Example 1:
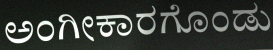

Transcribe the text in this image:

ಅಂಗೀಕಾರಗೊಂಡು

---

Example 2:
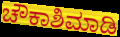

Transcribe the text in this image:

ಚೌಕಾಶಿಮಾಡಿ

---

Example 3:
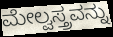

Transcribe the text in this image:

ಮೇಲ್ವಸ್ತ್ರವನ್ನು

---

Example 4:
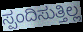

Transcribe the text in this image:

ಸ್ಪಂದಿಸುತ್ತಿಲ್ಲ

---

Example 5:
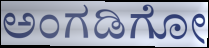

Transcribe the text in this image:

ಅಂಗಡಿಗೋ